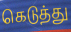
கெடுத்து